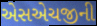
એસએચજીની